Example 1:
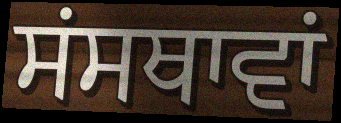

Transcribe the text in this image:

ਸਂਸਥਾਵਾਂ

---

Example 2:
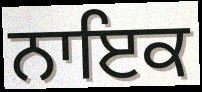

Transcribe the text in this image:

ਨਾਇਕ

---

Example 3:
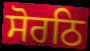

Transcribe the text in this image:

ਸੋਰਠਿ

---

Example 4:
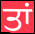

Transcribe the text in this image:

ਤਾਂ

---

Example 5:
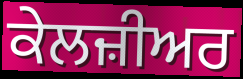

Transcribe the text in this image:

ਕੇਲਜ਼ੀਅਰ